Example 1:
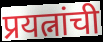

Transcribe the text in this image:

प्रयत्नांची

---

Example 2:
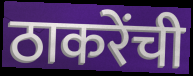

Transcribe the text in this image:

ठाकरेंची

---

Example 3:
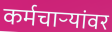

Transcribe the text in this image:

कर्मचाऱ्यांवर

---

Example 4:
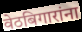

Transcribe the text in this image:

वेठबिगारांना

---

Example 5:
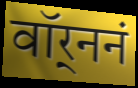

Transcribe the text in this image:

वॉर्ननं